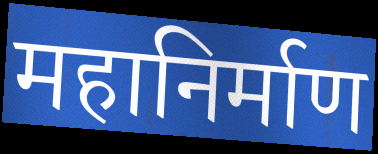
महानिर्माण